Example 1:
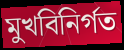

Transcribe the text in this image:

মুখবিনির্গত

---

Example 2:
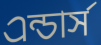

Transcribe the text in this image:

এন্ডার্স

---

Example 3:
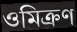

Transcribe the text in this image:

ওমিক্রণ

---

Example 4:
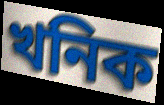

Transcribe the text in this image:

খনিক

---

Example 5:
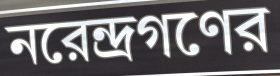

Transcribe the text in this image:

নরেন্দ্রগণের